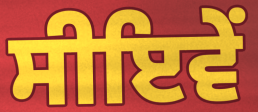
ਸੀਇਵੇਂ